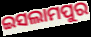
ଇସଲାମପୁର